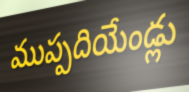
ముప్పదియేండ్లు